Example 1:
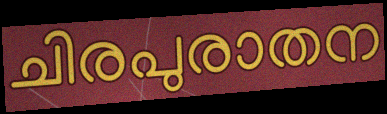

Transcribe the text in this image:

ചിരപുരാതന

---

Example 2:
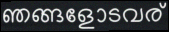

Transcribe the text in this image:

ഞങ്ങളോടവര്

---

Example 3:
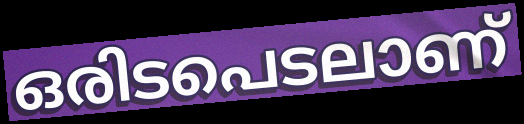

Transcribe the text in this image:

ഒരിടപെടലാണ്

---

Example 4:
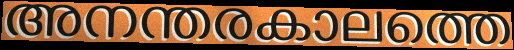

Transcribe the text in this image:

അനന്തരകാലത്തെ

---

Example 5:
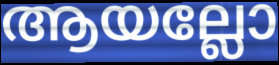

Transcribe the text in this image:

ആയല്ലോ